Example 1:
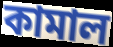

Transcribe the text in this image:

কামাল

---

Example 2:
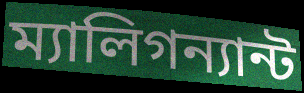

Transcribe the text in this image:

ম্যালিগন্যান্ট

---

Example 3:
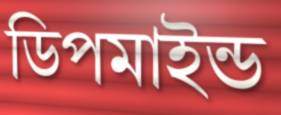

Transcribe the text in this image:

ডিপমাইন্ড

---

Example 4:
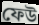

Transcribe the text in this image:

ফেউ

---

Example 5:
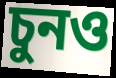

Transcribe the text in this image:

চুনও